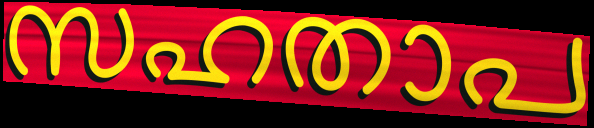
സഹതാപ